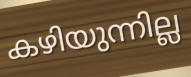
കഴിയുന്നില്ല